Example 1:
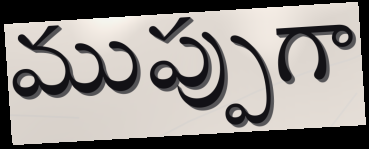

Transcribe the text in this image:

ముప్పుగా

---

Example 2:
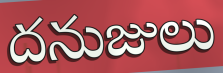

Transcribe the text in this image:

దనుజులు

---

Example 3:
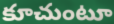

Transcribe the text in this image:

కూచుంటూ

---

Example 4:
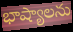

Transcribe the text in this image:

భాష్యాలను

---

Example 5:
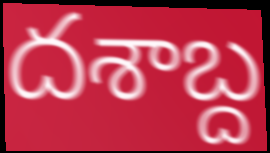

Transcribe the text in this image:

దశాబ్ద